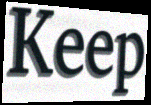
Keep